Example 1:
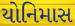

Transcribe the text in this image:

યોનિમાસ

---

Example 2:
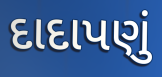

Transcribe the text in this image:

દાદાપણું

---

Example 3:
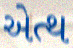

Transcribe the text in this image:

એત્થ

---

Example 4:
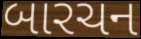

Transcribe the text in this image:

બારચન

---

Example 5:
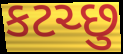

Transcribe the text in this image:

કટચ્છુ